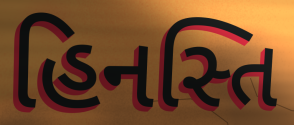
હિનસ્તિ